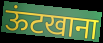
ऊंटखाना